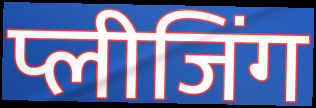
प्लीजिंग